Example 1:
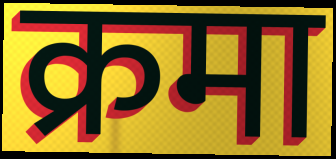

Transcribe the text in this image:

क्रमा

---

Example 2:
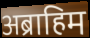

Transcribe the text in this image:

अब्राहिम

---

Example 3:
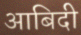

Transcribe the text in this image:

आबिदी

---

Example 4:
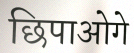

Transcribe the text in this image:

छिपाओगे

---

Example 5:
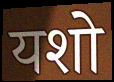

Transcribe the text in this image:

यशो